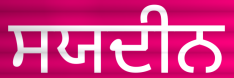
ਸਯਦੀਨ